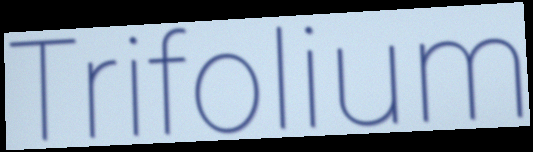
Trifolium